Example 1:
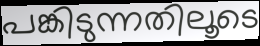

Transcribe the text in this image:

പങ്കിടുന്നതിലൂടെ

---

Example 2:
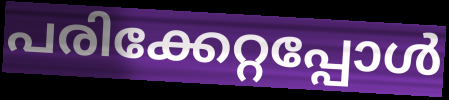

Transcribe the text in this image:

പരിക്കേറ്റപ്പോൾ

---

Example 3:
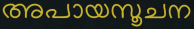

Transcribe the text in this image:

അപായസൂചന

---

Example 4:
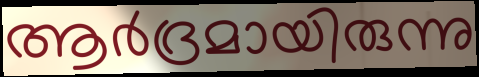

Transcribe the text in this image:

ആർദ്രമായിരുന്നു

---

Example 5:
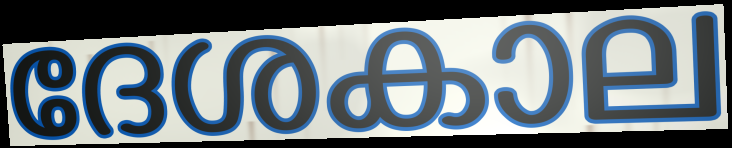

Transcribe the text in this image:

ദേശകാല